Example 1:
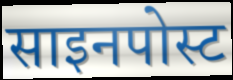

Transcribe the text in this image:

साइनपोस्ट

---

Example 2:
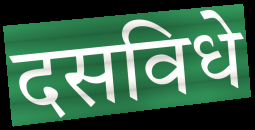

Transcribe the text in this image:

दसविधे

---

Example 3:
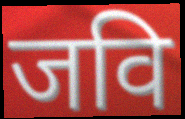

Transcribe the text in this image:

जवि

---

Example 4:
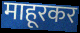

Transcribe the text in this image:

माहूरकर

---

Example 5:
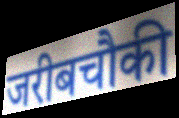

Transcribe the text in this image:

जरीबचौकी